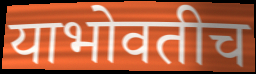
याभोवतीच